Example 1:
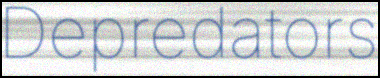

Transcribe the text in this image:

Depredators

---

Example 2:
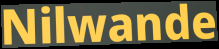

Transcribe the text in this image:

Nilwande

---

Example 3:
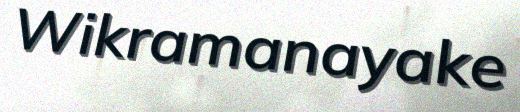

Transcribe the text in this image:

Wikramanayake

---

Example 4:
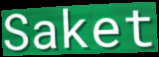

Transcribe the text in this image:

Saket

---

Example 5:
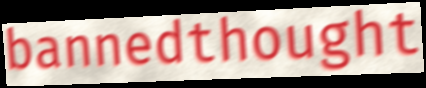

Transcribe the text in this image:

bannedthought